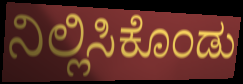
ನಿಲ್ಲಿಸಿಕೊಂಡು